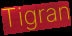
Tigran